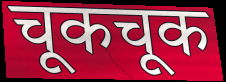
चूकचूक